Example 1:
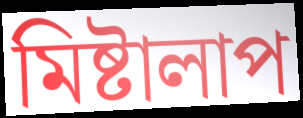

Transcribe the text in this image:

মিষ্টালাপ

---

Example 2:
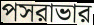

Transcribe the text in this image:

পসরাভার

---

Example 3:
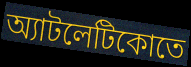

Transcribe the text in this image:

অ্যাটলেটিকোতে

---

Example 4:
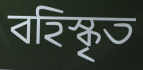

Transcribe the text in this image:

বহিস্কৃত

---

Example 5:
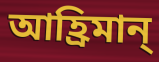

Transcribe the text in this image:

আহ্রিমান্